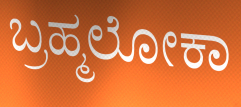
ಬ್ರಹ್ಮಲೋಕಾ